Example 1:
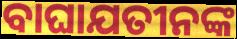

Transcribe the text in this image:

ବାଘାଯତୀନଙ୍କ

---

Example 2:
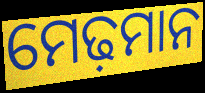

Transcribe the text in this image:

ମେଢ଼ମାନ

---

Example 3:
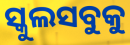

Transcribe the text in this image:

ସ୍କୁଲସବୁକୁ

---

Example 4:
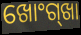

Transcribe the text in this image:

ଖୋଂଗ୍‍ଖା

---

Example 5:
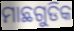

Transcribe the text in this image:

ମାଛଗୁଡିକ